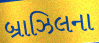
બ્રાઝિલના